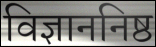
विज्ञाननिष्ठ